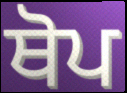
ਥੋਪ